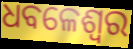
ଧବଳେଶ୍ଵର